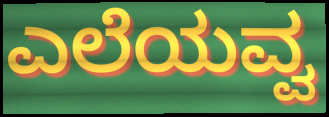
ಎಲೆಯವ್ವ